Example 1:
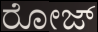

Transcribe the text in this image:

ರೋಜ್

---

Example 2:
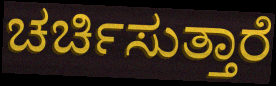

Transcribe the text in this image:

ಚರ್ಚಿಸುತ್ತಾರೆ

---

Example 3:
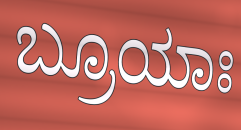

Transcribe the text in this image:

ಬ್ರೂಯಾಃ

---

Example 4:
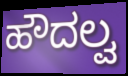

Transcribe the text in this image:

ಹೌದಲ್ವ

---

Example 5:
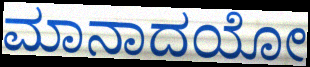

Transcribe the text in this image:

ಮಾನಾದಯೋ